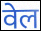
वेल